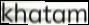
khatam